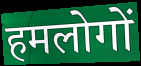
हमलोगों